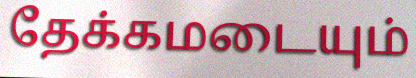
தேக்கமடையும்